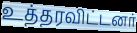
உத்தரவிட்டனர்